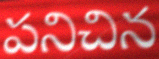
పనిచిన